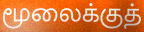
மூலைக்குத்